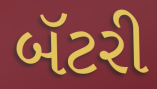
બૅટરી